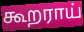
கூறராய்